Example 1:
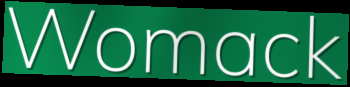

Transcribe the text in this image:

Womack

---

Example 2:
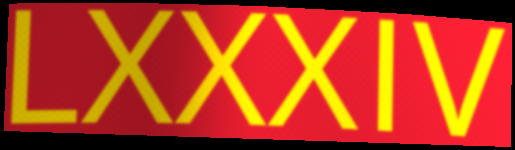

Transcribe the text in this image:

LXXXIV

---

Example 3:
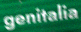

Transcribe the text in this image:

genitalia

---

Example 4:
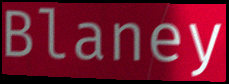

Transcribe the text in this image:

Blaney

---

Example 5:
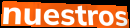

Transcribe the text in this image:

nuestros